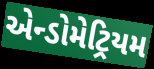
એન્ડોમેટ્રિયમ